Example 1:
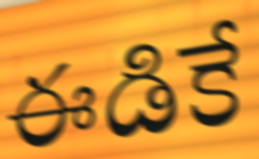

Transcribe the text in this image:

ఈడికే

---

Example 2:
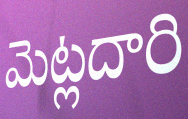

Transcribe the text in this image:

మెట్లదారి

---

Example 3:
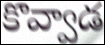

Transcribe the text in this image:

కొవ్వాడ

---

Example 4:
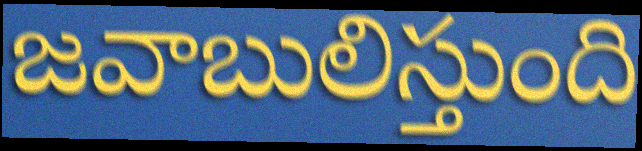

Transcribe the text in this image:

జవాబులిస్తుంది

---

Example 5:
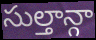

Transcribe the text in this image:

సుల్తాన్గా